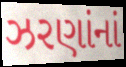
ઝરણાંનાં